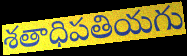
శతాధిపతియగు